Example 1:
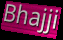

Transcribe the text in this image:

Bhajji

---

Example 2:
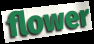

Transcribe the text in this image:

flower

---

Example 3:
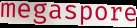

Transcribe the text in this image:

megaspore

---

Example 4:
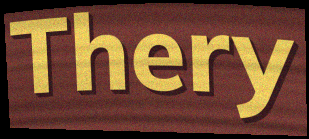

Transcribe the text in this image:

Thery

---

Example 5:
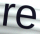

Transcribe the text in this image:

re